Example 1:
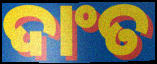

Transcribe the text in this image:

ଦାଂତ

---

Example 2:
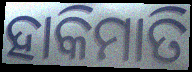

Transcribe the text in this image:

ହାକିମାତି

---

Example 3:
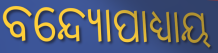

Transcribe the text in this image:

ବନ୍ଦ୍ୟୋପାଧ୍ୟାୟ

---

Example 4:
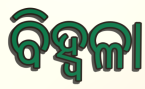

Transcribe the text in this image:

ବିହ୍ଵଳା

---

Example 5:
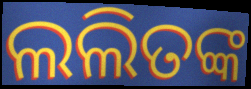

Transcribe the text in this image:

ଲଲିତଙ୍କ